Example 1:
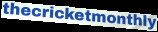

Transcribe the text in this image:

thecricketmonthly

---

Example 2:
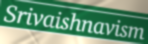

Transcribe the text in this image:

Srivaishnavism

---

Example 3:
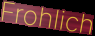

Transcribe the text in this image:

Frohlich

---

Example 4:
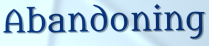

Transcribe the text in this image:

Abandoning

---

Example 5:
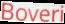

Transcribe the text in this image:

Boveri